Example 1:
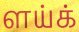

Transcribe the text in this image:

ளய்க்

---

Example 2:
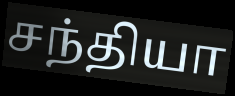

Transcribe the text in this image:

சந்தியா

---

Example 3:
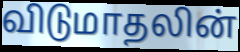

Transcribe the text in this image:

விடுமாதலின்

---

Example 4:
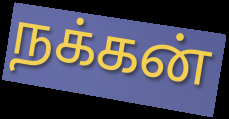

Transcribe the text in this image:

நக்கன்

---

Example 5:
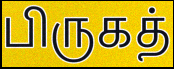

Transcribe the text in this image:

பிருகத்